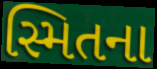
સ્મિતના